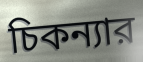
চিকন্যার